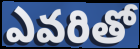
ఎవరితో